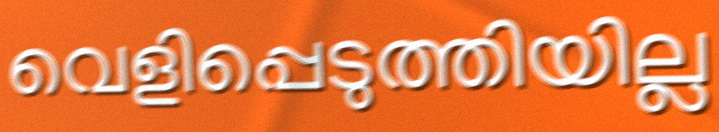
വെളിപ്പെടുത്തിയില്ല